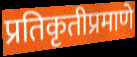
प्रतिकृतीप्रमाणे